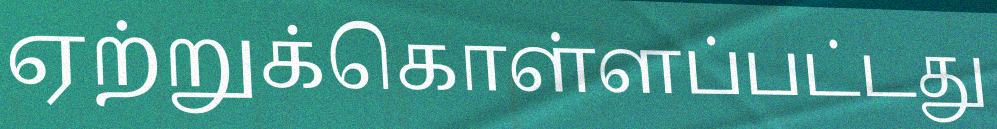
ஏற்றுக்கொள்ளப்பட்டது